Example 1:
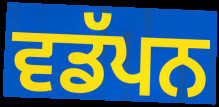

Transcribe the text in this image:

ਵਡੱਪਨ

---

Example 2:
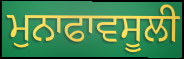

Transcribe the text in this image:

ਮੁਨਾਫਾਵਸੂਲੀ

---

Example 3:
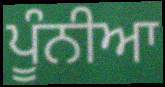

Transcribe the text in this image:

ਪੂੰਨੀਆ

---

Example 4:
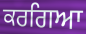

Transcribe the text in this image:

ਕਰਗਿਆ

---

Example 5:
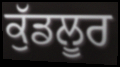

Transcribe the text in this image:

ਕੁੱਡਲੂਰ